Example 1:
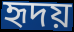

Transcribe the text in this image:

হৃদয়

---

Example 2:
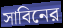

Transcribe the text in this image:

সাবিনের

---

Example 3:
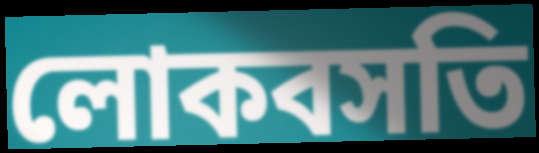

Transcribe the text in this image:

লোকবসতি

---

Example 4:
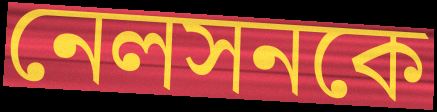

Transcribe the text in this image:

নেলসনকে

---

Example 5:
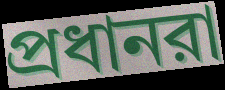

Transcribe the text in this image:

প্রধানরা